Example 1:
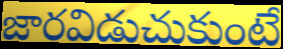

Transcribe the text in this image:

జారవిడుచుకుంటే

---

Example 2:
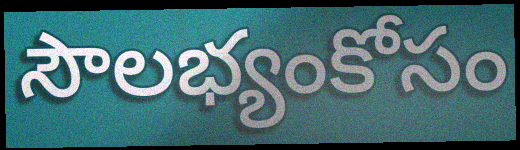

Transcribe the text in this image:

సౌలభ్యంకోసం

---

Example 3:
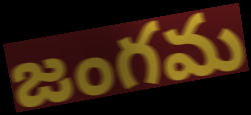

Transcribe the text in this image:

జంగమ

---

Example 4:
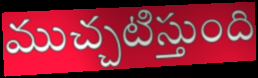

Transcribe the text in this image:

ముచ్చటిస్తుంది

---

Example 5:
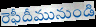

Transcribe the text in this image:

రెఫీదీమునుండి